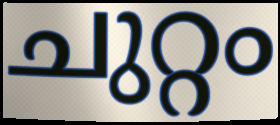
ചുറ്റം